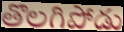
తొలగిపోడు